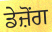
ਡੇਜ਼ੋਂਗ